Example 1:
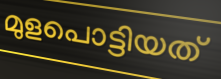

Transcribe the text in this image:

മുളപൊട്ടിയത്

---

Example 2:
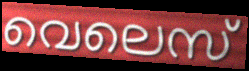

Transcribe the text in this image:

വെലെസ്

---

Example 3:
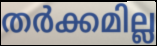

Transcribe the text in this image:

തർക്കമില്ല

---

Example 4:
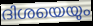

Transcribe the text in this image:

ദിശയെയും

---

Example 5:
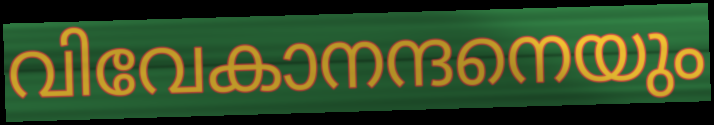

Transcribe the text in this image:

വിവേകാനന്ദനെയും